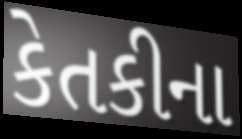
કેતકીના